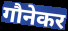
गौनेकर